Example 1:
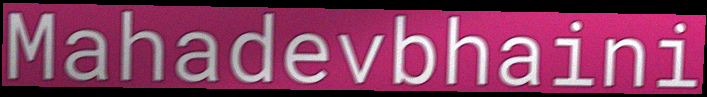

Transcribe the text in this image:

Mahadevbhaini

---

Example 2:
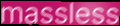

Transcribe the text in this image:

massless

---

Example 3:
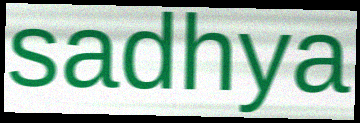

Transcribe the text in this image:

sadhya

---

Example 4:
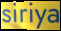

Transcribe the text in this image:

siriya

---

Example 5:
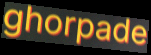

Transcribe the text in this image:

ghorpade